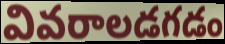
వివరాలడగడం